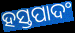
ହସ୍ତପାଦଂ